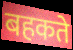
बहकते